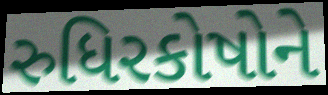
રુધિરકોષોને